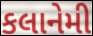
કલાનેમી